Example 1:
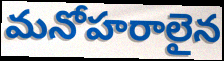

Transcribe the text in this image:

మనోహరాలైన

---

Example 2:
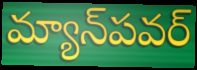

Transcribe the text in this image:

మ్యాన్‌పవర్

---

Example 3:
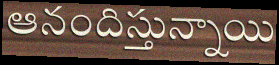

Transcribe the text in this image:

ఆనందిస్తున్నాయి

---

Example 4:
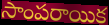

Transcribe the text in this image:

సాంపరాయిక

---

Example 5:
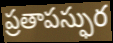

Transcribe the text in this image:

ప్రతాపస్ఫుర